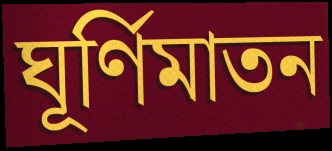
ঘূর্ণিমাতন